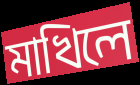
মাখিলে